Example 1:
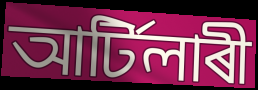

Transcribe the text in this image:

আৰ্টিলাৰী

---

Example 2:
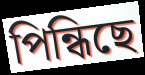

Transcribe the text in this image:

পিন্ধিছে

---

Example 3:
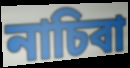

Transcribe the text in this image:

নাচিবা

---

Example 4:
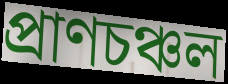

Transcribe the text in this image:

প্ৰাণচঞ্চল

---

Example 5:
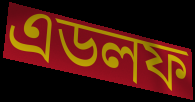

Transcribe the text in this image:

এডলফ